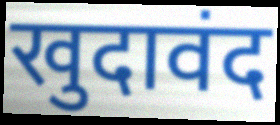
खुदावंद